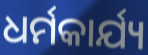
ଧର୍ମକାର୍ଯ୍ୟ